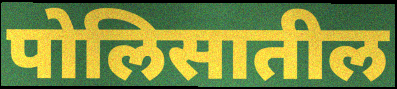
पोलिसातील